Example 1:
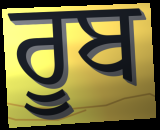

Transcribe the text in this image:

ਰੂਬ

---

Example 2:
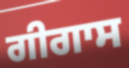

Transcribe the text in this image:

ਗੀਗਾਸ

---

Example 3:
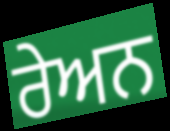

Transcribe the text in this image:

ਰੇਅਨ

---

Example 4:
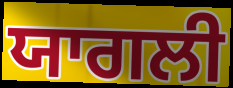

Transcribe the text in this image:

ਯਾਗਲੀ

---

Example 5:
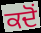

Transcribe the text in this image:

ਕਦੋਂ